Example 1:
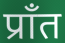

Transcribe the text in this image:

प्राँत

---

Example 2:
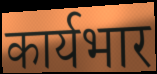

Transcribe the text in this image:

कार्यभार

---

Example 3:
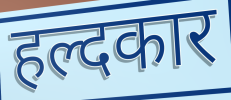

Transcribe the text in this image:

हल्दकार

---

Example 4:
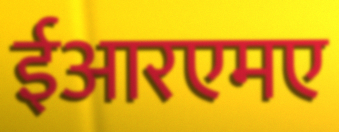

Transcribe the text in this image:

ईआरएमए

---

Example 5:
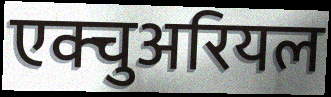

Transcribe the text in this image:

एक्चुअरियल